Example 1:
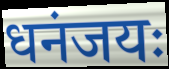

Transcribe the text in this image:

धनंजयः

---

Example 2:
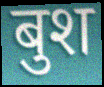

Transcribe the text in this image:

बुश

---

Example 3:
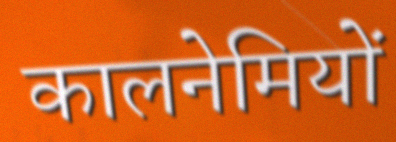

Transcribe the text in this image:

कालनेमियों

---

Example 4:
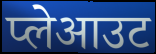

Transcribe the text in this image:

प्लेआउट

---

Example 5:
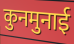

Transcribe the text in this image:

कुनमुनाई